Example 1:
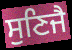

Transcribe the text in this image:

ਸੁਣਿਜੈ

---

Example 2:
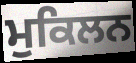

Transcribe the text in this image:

ਮੁਕਿਲਨ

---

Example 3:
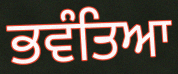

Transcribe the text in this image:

ਭਵੰਤਿਆ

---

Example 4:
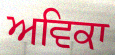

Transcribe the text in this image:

ਅਵਿਕਾ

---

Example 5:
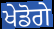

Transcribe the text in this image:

ਖੇਡੋਗੇ